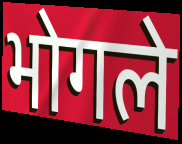
भोगले